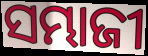
ସମ୍ଭାଜୀ